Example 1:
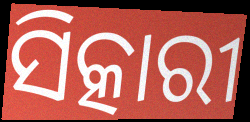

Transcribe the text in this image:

ସିତ୍କାରୀ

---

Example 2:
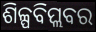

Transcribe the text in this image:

ଶିଳ୍ପବିପ୍ଲବର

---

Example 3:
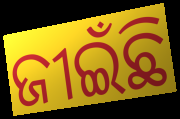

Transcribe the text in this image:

ଜୀଇଁଛି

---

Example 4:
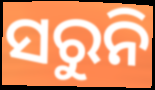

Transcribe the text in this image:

ସରୁନି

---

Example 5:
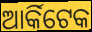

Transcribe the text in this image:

ଆର୍କିଟେକ